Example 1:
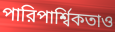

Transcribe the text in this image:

পারিপার্শ্বিকতাও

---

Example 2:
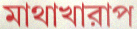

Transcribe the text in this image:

মাথাখারাপ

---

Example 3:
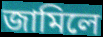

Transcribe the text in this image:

জামিলে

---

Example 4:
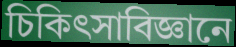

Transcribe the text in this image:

চিকিৎসাবিজ্ঞানে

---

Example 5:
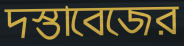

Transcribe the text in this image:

দস্তাবেজের